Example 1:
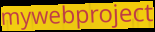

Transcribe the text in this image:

mywebproject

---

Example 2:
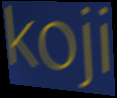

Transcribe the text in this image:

koji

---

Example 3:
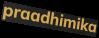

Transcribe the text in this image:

praadhimika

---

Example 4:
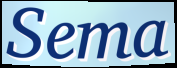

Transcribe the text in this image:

Sema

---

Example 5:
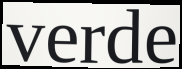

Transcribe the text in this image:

verde